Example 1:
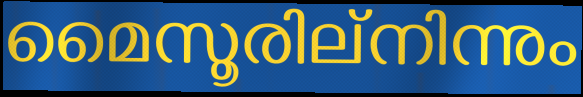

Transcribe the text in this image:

മൈസൂരില്നിന്നും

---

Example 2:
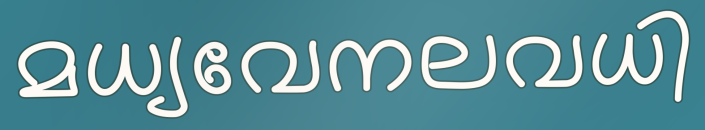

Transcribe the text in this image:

മധ്യവേനലവധി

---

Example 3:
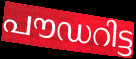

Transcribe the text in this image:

പൗഡറിട്ട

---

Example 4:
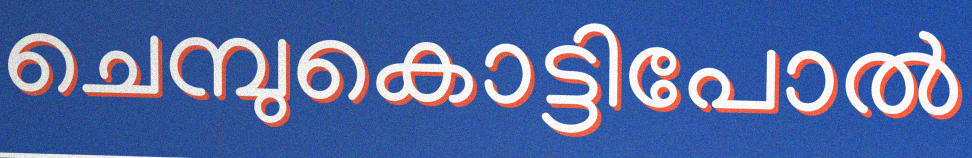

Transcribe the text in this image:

ചെമ്പുകൊട്ടിപോൽ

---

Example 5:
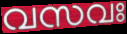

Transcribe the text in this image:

വസവഃ